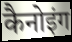
कैनोइंग